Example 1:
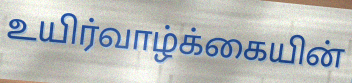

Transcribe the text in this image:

உயிர்வாழ்க்கையின்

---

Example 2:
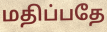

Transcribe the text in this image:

மதிப்பதே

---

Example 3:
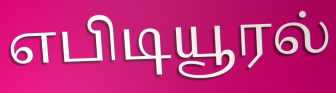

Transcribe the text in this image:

எபிடியூரல்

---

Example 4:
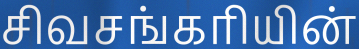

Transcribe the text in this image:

சிவசங்கரியின்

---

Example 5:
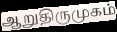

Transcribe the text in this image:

ஆறுதிருமுகம்